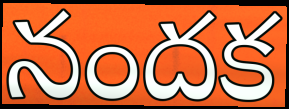
నందక